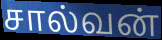
சால்வன்